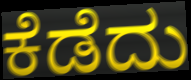
ಕೆಡೆದು